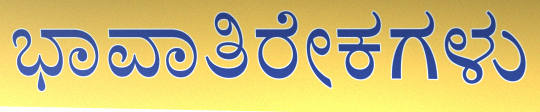
ಭಾವಾತಿರೇಕಗಳು